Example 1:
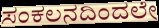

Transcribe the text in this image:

ಸಂಕಲನದಿಂದಲೇ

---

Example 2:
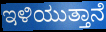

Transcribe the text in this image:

ಇಳಿಯುತ್ತಾನೆ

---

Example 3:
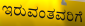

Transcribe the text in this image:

ಇರುವಂತವರಿಗೆ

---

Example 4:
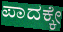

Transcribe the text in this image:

ಪಾದಕ್ಕೇ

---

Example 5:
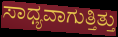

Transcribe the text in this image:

ಸಾಧ್ಯವಾಗುತ್ತಿತ್ತು